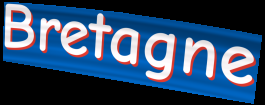
Bretagne